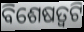
ବିଶେଷତ୍ୱଟି